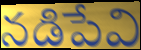
నడిపేవి